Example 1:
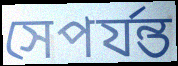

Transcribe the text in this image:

সেপর্যন্ত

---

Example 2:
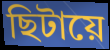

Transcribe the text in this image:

ছিটায়ে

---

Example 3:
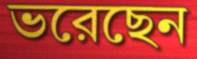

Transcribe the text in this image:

ভরেছেন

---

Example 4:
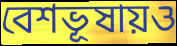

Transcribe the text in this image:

বেশভূষায়ও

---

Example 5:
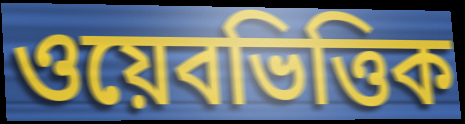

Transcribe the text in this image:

ওয়েবভিত্তিক